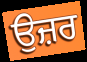
ਉਜ਼ਰ